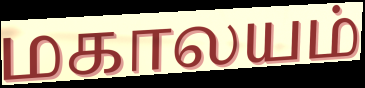
மகாலயம்